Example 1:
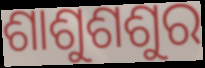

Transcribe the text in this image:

ଶାଶୁଶଶୁର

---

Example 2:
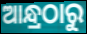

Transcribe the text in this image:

ଆନ୍ଧ୍ରଠାରୁ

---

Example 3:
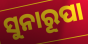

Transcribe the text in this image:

ସୁନାରୂପା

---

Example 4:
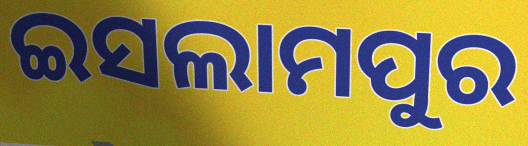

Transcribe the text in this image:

ଇସଲାମପୁର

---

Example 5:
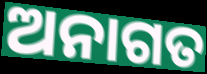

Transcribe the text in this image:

ଅନାଗତ